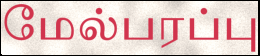
மேல்பரப்பு